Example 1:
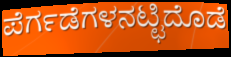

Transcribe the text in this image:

ಪೆರ್ಗಡೆಗಳನಟ್ಟಿದೊಡೆ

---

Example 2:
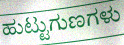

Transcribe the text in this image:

ಹುಟ್ಟುಗುಣಗಳು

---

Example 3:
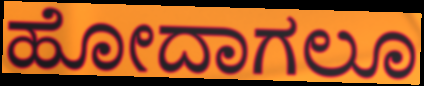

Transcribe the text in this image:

ಹೋದಾಗಲೂ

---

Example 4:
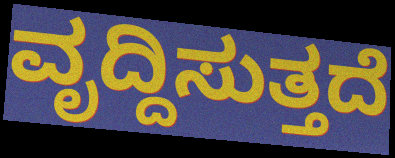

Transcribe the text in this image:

ವೃದ್ದಿಸುತ್ತದೆ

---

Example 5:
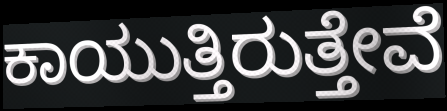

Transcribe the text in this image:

ಕಾಯುತ್ತಿರುತ್ತೇವೆ